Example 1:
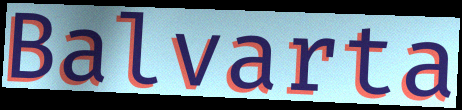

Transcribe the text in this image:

Balvarta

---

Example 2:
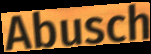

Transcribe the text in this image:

Abusch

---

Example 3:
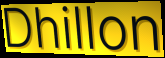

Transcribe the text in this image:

Dhillon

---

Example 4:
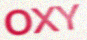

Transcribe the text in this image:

OXY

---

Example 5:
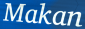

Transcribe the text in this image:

Makan